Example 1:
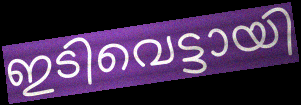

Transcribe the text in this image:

ഇടിവെട്ടായി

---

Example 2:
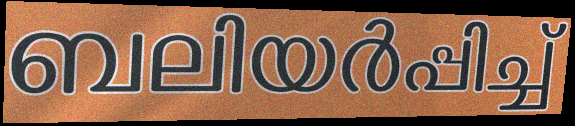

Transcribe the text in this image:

ബലിയർപ്പിച്ച്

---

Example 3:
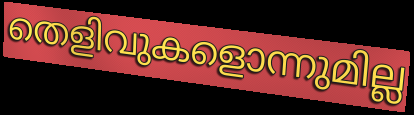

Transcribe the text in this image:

തെളിവുകളൊന്നുമില്ല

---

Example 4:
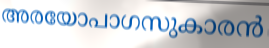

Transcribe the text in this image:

അരയോപാഗസുകാരൻ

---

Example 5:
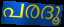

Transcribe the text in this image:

പരദൂ